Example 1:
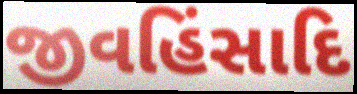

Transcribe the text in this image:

જીવહિંસાદિ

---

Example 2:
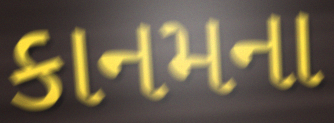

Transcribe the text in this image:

કાનમના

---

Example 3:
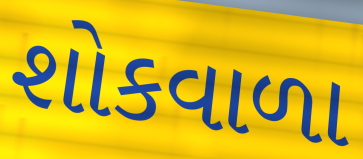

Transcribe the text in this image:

શોકવાળા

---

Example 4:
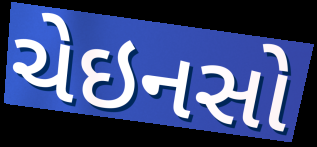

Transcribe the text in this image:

ચેઇનસો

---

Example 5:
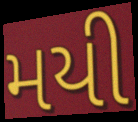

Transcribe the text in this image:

મયી